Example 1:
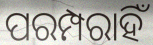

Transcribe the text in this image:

ପରମ୍ପରାହିଁ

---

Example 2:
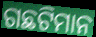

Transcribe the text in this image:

ଗଛଟିମାନ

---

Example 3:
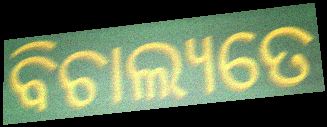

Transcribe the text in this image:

ବିଚାଲ୍ୟତେ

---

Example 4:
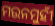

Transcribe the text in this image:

ମଉନମୁହୀଁ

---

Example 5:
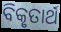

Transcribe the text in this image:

ବିକୃତାର୍ଥ